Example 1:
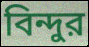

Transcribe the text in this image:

বিন্দুর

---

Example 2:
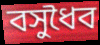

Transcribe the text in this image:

বসুধৈব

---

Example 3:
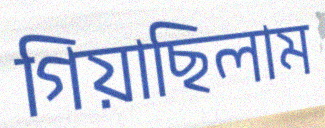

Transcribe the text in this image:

গিয়াছিলাম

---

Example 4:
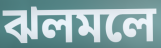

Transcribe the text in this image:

ঝলমলে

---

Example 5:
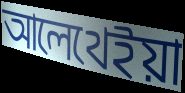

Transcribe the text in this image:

আলেথেইয়া